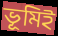
ভূমিই